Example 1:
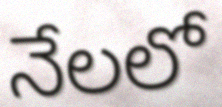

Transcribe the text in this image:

నేలలో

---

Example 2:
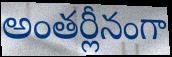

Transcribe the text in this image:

అంతర్లీనంగా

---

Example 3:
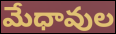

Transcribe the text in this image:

మేధావుల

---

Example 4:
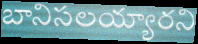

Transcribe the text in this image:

బానిసలయ్యారని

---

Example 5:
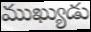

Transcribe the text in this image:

ముఖ్యుడు